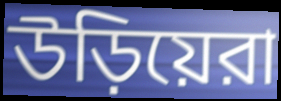
উড়িয়েরা